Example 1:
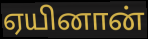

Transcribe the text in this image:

ஏயினான்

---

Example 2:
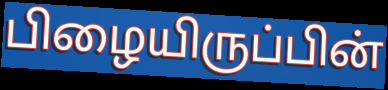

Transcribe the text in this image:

பிழையிருப்பின்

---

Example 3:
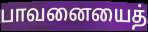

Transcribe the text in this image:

பாவனையைத்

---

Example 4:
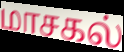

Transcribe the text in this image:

மாசகல்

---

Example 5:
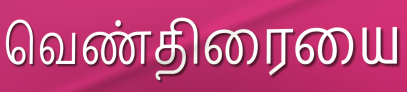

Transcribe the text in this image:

வெண்திரையை